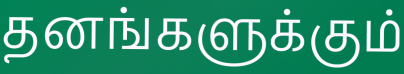
தனங்களுக்கும்